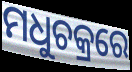
ମଧୁଚକ୍ରରେ